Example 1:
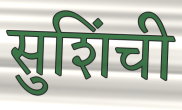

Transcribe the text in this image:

सुशिंची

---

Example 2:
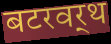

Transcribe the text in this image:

बटरवर्थ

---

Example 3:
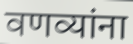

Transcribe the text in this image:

वणव्यांना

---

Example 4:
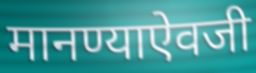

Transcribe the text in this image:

मानण्याऐवजी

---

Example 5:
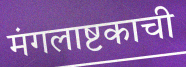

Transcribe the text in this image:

मंगलाष्टकाची